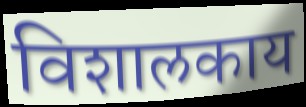
विशालकाय